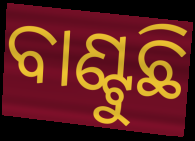
ବାଣ୍ଟୁଛି